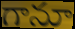
గానూ